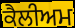
ਕੈਲੀਅਮ